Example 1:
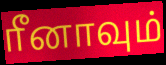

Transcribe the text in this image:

ரீனாவும்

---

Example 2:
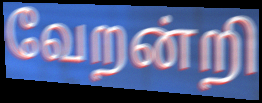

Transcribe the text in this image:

வேறன்றி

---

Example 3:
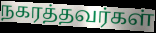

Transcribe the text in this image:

நகரத்தவர்கள்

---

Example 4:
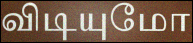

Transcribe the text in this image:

விடியுமோ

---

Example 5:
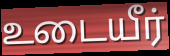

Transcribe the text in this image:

உடையீர்